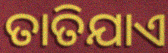
ତାତିଯାଏ